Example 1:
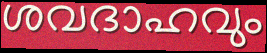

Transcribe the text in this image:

ശവദാഹവും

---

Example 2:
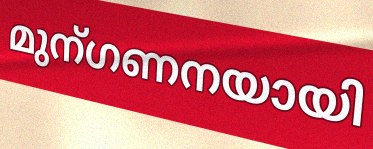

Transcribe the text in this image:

മുന്ഗണനയായി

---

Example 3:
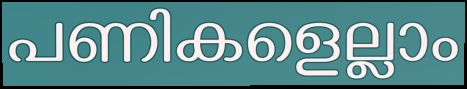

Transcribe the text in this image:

പണികളെല്ലാം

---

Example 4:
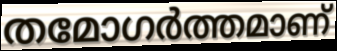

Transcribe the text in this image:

തമോഗർത്തമാണ്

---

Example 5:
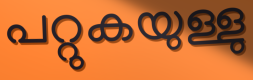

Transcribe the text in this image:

പറ്റുകയുള്ളു